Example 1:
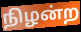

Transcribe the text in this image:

நிழன்ற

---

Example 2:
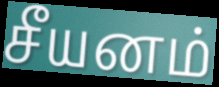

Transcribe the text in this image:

சீயனம்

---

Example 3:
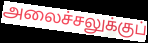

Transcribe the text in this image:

அலைச்சலுக்குப்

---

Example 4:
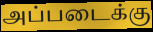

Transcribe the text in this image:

அப்படைக்கு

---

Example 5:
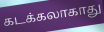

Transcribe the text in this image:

கடக்கலாகாது